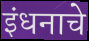
इंधनाचे